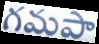
గమపా